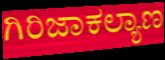
ಗಿರಿಜಾಕಲ್ಯಾಣ